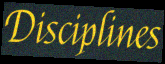
Disciplines